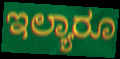
ಇಲ್ಯಾರೂ